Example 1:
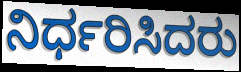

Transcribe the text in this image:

ನಿರ್ಧರಿಸಿದರು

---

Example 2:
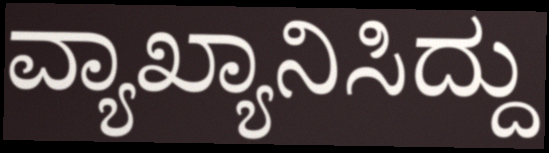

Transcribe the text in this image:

ವ್ಯಾಖ್ಯಾನಿಸಿದ್ದು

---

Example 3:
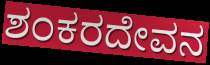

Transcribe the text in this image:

ಶಂಕರದೇವನ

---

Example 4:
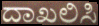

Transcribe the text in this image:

ದಾಖಲಿಸಿ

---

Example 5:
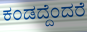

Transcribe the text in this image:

ಕಂಡದ್ದೆಂದರೆ